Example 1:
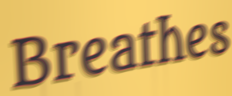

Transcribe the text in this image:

Breathes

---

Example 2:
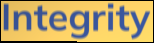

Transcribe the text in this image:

Integrity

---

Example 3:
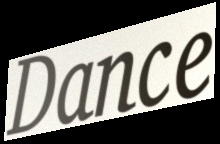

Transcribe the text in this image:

Dance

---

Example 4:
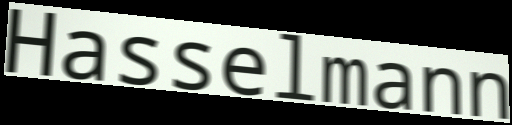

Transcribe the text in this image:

Hasselmann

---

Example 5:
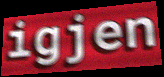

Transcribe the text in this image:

igjen